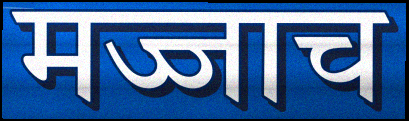
मज्जाच